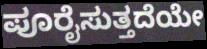
ಪೂರೈಸುತ್ತದೆಯೇ